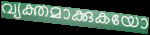
വ്യക്തമാക്കുകയോ